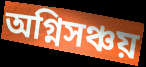
অগ্নিসঞ্চয়